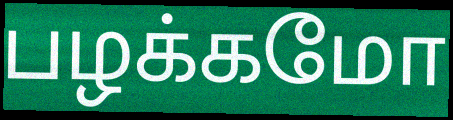
பழக்கமோ